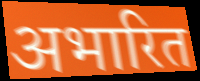
अभारित